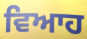
ਵਿਆਹ